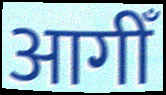
आगीँ